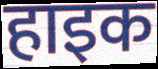
हाइक